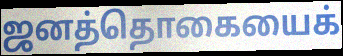
ஜனத்தொகையைக்